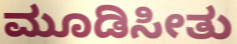
ಮೂಡಿಸೀತು